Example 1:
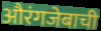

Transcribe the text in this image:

औरंगजेबाची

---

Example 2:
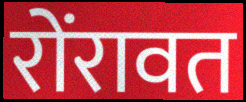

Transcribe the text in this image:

रोंरावत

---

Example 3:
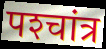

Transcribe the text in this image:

पश्चांत्र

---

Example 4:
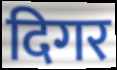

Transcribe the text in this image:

दिगर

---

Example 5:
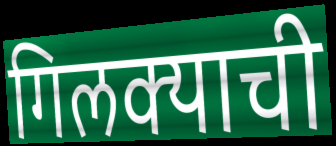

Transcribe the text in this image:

गिलक्याची